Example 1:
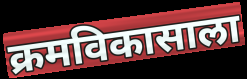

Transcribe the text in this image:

क्रमविकासाला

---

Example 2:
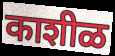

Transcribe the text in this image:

काशीळ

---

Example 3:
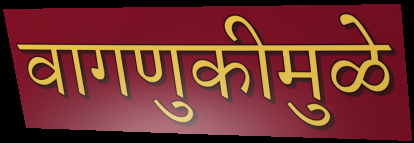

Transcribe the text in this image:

वागणुकीमुळे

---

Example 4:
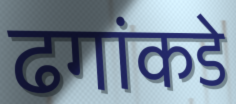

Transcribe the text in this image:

ढगांकडे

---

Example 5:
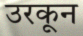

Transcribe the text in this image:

उरकून